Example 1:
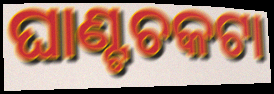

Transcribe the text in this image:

ଘାଣ୍ଟଚକଟା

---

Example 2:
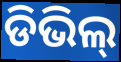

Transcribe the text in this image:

ଡିଭିଲ୍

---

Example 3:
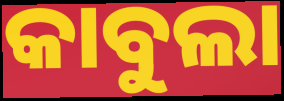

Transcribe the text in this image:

କାବୁଲା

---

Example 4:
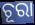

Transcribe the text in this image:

ଚୂରା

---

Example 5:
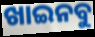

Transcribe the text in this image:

ଖାଇନବୁ